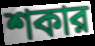
শকার